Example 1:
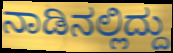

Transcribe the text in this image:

ನಾಡಿನಲ್ಲಿದ್ದು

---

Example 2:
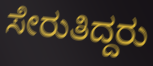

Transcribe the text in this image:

ಸೇರುತಿದ್ದರು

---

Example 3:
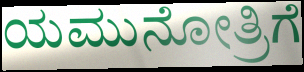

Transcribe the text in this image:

ಯಮುನೋತ್ರಿಗೆ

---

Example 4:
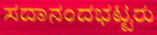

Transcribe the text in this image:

ಸದಾನಂದಭಟ್ಟರು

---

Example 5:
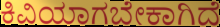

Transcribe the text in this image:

ಕಿವಿಯಾಗಬೇಕಾಗಿದೆ